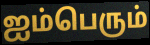
ஐம்பெரும்